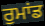
ਰੁਮਾਂਡ